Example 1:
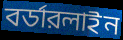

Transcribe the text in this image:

বর্ডারলাইন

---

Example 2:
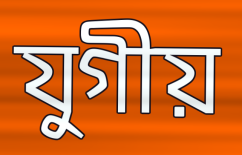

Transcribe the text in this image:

যুগীয়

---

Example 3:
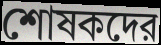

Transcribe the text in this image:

শোষকদের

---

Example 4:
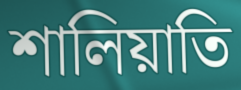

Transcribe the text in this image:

শালিয়াতি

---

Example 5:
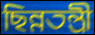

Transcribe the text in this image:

ছিন্নতন্ত্রী